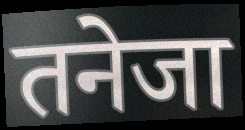
तनेजा